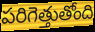
పరిగెత్తుతోంది